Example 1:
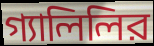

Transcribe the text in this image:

গ্যালিলির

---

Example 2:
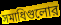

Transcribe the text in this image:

সমাধিগুলোর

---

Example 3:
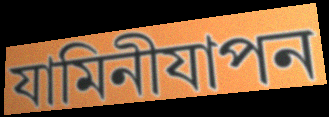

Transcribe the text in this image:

যামিনীযাপন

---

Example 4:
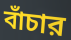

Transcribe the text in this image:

বাঁচার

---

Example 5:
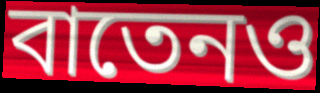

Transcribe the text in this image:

বাতেনও